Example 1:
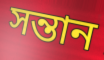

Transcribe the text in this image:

সন্তান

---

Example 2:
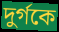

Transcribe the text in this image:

দুর্গকে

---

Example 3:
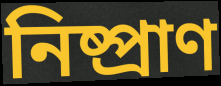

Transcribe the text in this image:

নিষ্প্রাণ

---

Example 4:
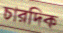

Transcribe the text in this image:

চারদিক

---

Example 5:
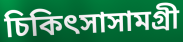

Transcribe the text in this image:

চিকিৎসাসামগ্রী